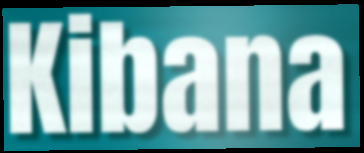
Kibana